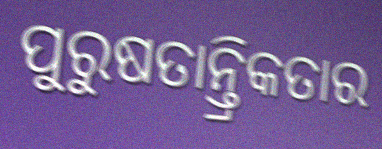
ପୁରୁଷତାନ୍ତ୍ରିକତାର